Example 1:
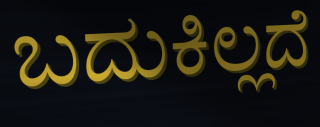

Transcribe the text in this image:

ಬದುಕಿಲ್ಲದೆ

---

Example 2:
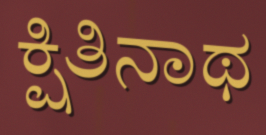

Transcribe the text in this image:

ಕ್ಷಿತಿನಾಥ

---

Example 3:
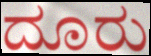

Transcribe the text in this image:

ದೂರು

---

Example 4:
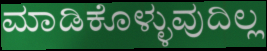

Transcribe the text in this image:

ಮಾಡಿಕೊಳ್ಳುವುದಿಲ್ಲ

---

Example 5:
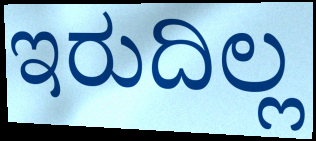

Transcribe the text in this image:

ಇರುದಿಲ್ಲ